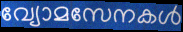
വ്യോമസേനകൾ